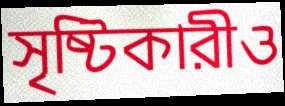
সৃষ্টিকারীও